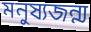
মনুষ্যজন্ম